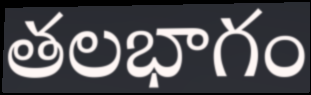
తలభాగం